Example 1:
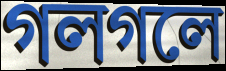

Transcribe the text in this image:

গলগলে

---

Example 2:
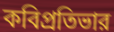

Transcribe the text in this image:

কবিপ্রতিভার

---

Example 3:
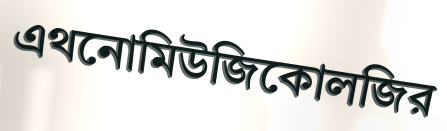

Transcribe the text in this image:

এথনোমিউজিকোলজির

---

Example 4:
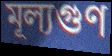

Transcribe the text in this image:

মূল্যগুণ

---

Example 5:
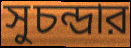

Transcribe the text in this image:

সুচন্দ্রার